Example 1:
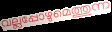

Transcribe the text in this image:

വല്ലപ്പോഴുമെത്തുന്ന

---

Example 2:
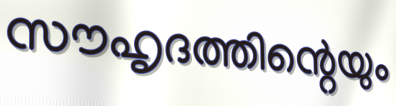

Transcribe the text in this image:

സൗഹൃദത്തിന്റെയും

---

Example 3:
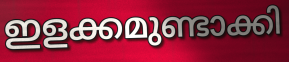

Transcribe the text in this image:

ഇളക്കമുണ്ടാക്കി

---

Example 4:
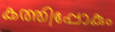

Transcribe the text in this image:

കത്തിപ്പോകും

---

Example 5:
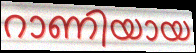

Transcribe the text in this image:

റാണിയായ